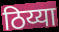
ठिय्या